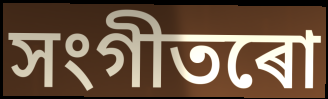
সংগীতৰো